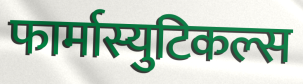
फार्मास्युटिकल्स